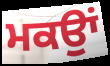
ਮਕਉਾਂ